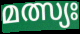
മത്സ്യഃ